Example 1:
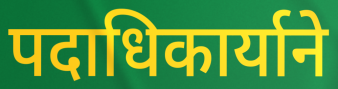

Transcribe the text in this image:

पदाधिकार्याने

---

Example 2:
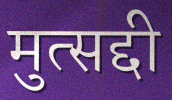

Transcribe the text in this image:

मुत्सद्दी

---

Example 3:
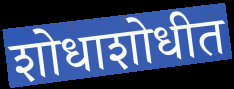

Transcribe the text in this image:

शोधाशोधीत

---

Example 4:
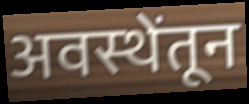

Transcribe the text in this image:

अवस्थेंतून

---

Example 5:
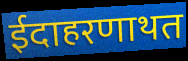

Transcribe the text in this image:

ईदाहरणाथत